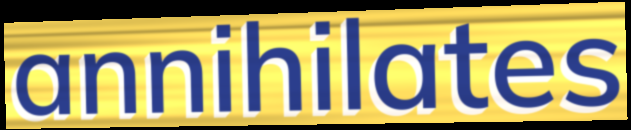
annihilates